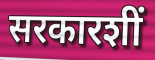
सरकारशीं